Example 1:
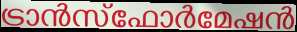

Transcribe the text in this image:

ട്രാൻസ്ഫോർമേഷൻ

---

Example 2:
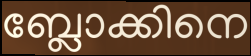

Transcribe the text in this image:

ബ്ലോക്കിനെ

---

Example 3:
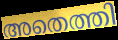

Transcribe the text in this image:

അതെത്തി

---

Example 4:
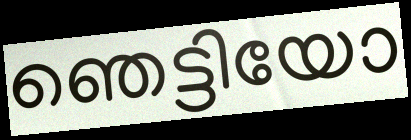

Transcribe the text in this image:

ഞെട്ടിയോ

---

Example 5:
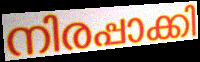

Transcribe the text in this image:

നിരപ്പാക്കി